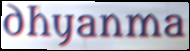
dhyanma